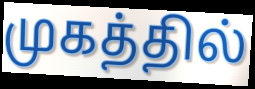
முகத்தில்